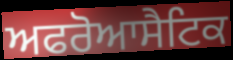
ਅਫਰੋਆਸੈਟਿਕ